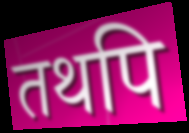
तथपि